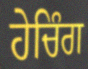
ਹੇਚਿੰਗ